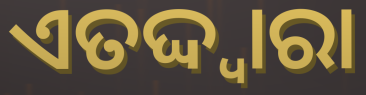
ଏତଦ୍ଦ୍ୱାରା